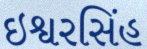
ઇશ્વરસિંહ